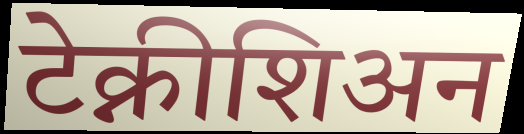
टेक्नीशिअन